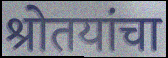
श्रोतयांचा